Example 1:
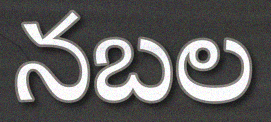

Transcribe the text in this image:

నబల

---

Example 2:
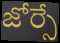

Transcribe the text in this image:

జోర్సే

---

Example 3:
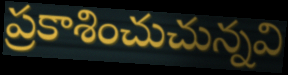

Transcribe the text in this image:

ప్రకాశించుచున్నవి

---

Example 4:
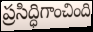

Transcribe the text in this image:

ప్రసిద్ధిగాంచింది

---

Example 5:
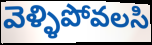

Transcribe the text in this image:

వెళ్ళిపోవలసి